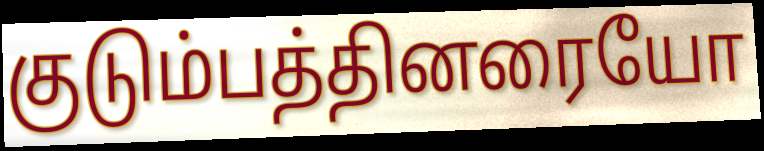
குடும்பத்தினரையோ